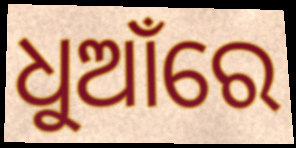
ଧୁଆଁରେ